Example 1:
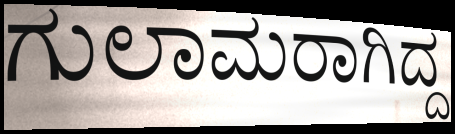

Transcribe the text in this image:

ಗುಲಾಮರಾಗಿದ್ದ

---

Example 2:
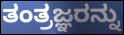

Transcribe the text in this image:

ತಂತ್ರಜ್ಞರನ್ನು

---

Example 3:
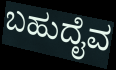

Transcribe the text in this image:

ಬಹುದೈವ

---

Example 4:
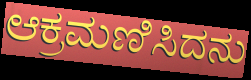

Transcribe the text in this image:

ಆಕ್ರಮಣಿಸಿದನು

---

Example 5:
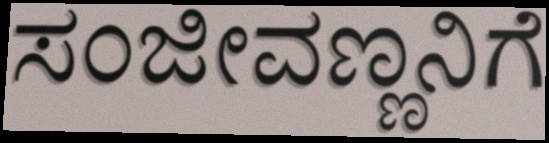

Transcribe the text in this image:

ಸಂಜೀವಣ್ಣನಿಗೆ